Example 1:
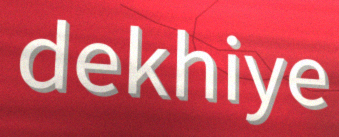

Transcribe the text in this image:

dekhiye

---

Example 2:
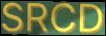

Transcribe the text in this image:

SRCD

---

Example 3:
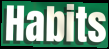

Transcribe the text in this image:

Habits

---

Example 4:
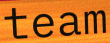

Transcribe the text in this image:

team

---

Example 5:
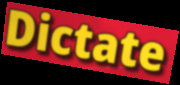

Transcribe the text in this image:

Dictate